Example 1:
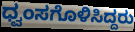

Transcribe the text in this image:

ಧ್ವಂಸಗೊಳಿಸಿದ್ದರು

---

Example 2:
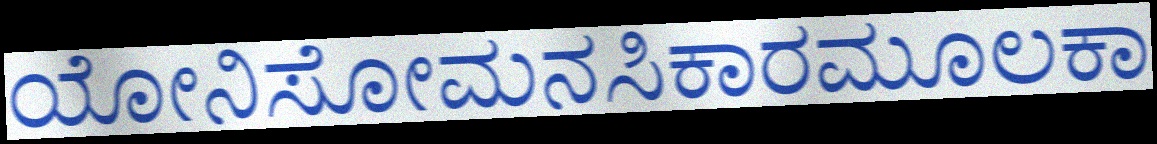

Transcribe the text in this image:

ಯೋನಿಸೋಮನಸಿಕಾರಮೂಲಕಾ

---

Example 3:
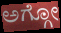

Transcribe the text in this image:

ಅಗ್ಗೋ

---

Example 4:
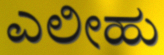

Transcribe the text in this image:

ಎಲೀಹು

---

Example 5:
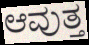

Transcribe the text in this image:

ಆವುತ್ತ